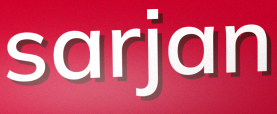
sarjan